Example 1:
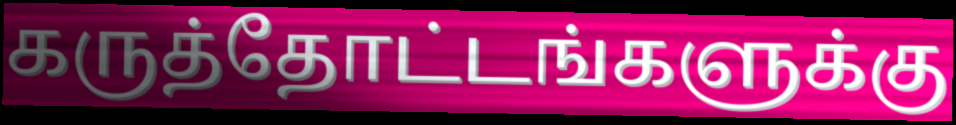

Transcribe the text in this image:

கருத்தோட்டங்களுக்கு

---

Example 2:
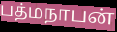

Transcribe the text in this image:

பத்மநாபன்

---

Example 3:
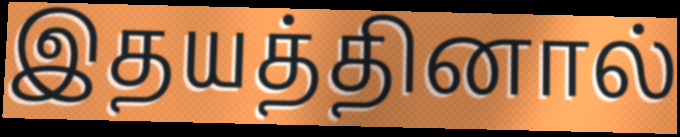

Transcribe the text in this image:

இதயத்தினால்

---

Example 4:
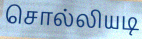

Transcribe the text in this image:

சொல்லியடி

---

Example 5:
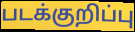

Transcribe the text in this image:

படக்குறிப்பு